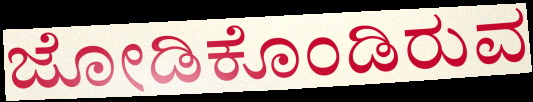
ಜೋಡಿಕೊಂಡಿರುವ